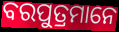
ବରପୁତ୍ରମାନେ